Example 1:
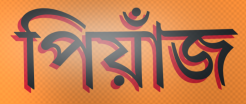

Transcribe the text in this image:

পিয়াঁজ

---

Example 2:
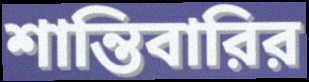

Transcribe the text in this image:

শান্তিবারির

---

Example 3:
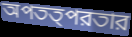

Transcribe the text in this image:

অপতত্পরতার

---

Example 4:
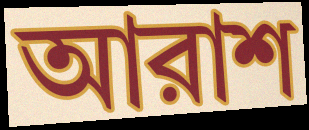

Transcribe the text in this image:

আরাশ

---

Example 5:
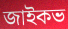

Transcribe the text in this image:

জাইকভ